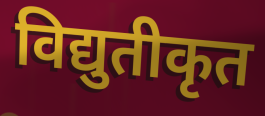
विद्युतीकृत